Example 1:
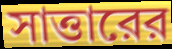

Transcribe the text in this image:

সাত্তারের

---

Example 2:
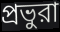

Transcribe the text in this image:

প্রভুরা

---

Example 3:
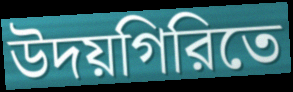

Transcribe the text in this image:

উদয়গিরিতে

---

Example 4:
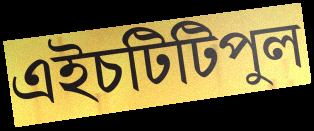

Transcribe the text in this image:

এইচটিটিপুল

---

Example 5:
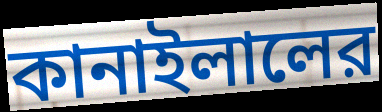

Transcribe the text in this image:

কানাইলালের